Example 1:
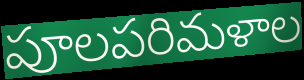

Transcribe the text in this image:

పూలపరిమళాల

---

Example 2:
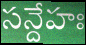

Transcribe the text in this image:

సన్దేహః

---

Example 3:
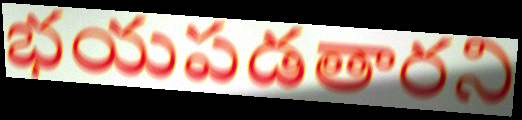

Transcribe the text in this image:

భయపడతారని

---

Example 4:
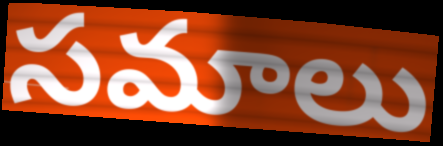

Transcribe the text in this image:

సమాలు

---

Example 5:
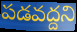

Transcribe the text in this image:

పడవద్దని